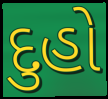
દુહો